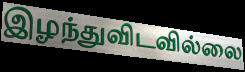
இழந்துவிடவில்லை